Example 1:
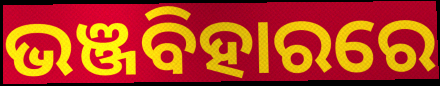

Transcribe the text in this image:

ଭଞ୍ଜବିହାରରେ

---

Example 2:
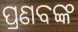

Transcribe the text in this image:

ପ୍ରଣବଙ୍କ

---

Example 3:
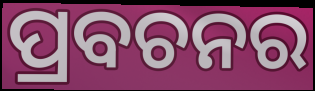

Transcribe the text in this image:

ପ୍ରବଚନର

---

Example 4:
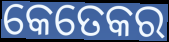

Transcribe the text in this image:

କେତେକର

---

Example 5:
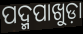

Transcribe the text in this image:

ପଦ୍ମପାଖୁଡ଼ା